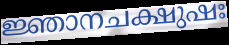
ജ്ഞാനചക്ഷുഷഃ